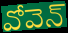
వోవెన్